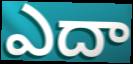
ఎదా